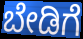
ಬೇಡಿಗೆ